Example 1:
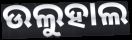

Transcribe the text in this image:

ଉଲୁହାଲ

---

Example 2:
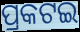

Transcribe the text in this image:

ପ୍ରକଟଇ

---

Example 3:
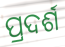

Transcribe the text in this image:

ପ୍ରଦର୍ଶ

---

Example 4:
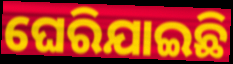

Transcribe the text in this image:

ଘେରିଯାଇଛି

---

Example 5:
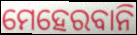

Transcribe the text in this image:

ମେହେରବାନି